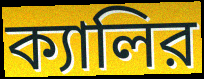
ক্যালির